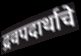
द्रवपदार्थाचे